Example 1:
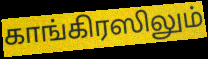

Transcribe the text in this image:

காங்கிரஸிலும்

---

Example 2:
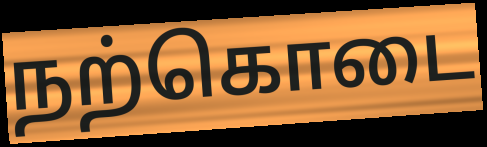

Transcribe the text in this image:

நற்கொடை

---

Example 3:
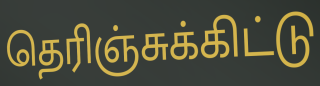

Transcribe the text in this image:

தெரிஞ்சுக்கிட்டு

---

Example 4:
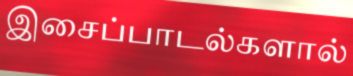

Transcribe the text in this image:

இசைப்பாடல்களால்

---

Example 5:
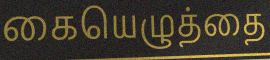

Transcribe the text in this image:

கையெழுத்தை